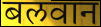
बलवान